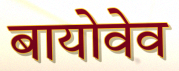
बायोवेव